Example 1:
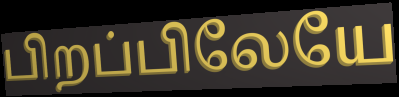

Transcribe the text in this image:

பிறப்பிலேயே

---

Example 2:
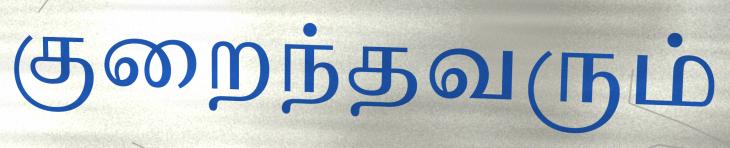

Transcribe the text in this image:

குறைந்தவரும்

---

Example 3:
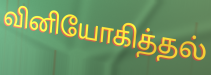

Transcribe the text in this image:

வினியோகித்தல்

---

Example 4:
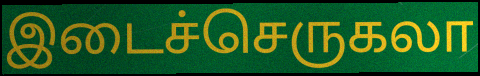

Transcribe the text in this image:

இடைச்செருகலா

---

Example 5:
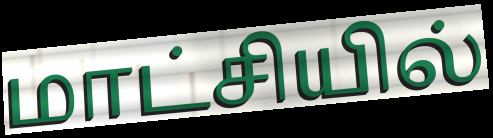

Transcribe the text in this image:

மாட்சியில்